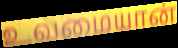
உவமையான்